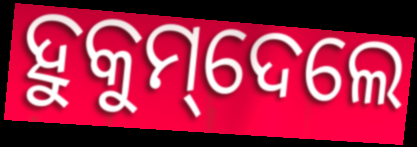
ହୁକୁମ୍‌ଦେଲେ